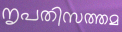
നൃപതിസത്തമ